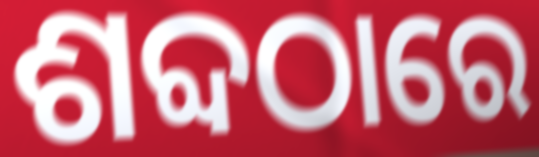
ଶବ୍ଦଠାରେ